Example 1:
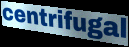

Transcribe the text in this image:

centrifugal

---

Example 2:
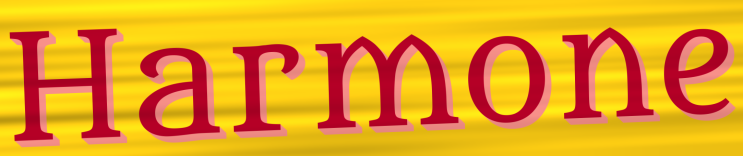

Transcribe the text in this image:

Harmone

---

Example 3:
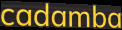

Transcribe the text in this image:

cadamba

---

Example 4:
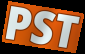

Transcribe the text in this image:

PST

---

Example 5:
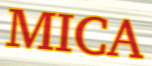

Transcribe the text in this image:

MICA